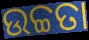
ଉଚ୍ଚତା